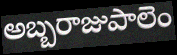
అబ్బరాజుపాలెం